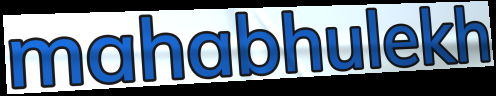
mahabhulekh